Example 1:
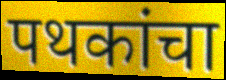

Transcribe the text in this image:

पथकांचा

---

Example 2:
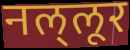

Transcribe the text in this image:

नल्लूर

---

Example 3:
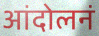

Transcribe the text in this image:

आंदोलनं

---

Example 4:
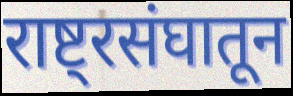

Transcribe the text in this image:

राष्ट्रसंघातून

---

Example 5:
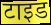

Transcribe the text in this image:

टाइड